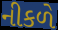
નીકળે